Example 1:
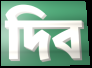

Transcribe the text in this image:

দিব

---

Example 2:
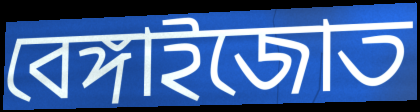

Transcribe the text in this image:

বেঙ্গাইজোত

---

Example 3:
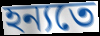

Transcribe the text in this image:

হন্যতে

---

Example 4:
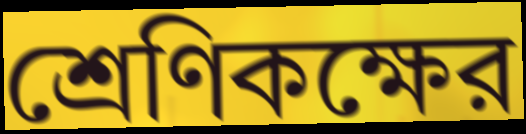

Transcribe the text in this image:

শ্রেণিকক্ষের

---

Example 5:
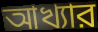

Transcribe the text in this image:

আখ্যার